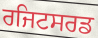
ਰਜਿਟਸਰਡ